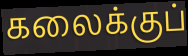
கலைக்குப்